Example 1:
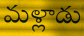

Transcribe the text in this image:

మళ్లాడు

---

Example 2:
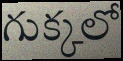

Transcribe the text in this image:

గుక్కలో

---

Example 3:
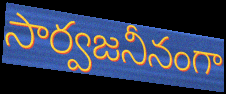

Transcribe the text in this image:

సార్వజనీనంగా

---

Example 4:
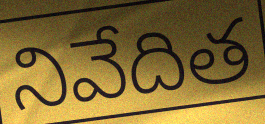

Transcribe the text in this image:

నివేదిత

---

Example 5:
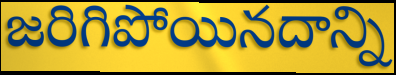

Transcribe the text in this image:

జరిగిపోయినదాన్ని